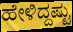
ಹೇಳಿದ್ದಷ್ಟು